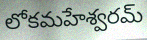
లోకమహేశ్వరమ్